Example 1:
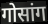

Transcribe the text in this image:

गोसांग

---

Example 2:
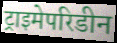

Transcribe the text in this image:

ट्राइमेपरिडीन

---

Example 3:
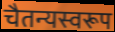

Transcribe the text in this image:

चैतन्यस्वरूप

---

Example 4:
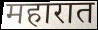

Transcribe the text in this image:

महारात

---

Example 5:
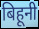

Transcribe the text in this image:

बिहूनी